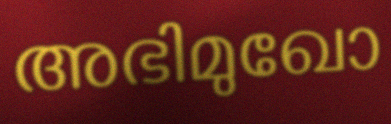
അഭിമുഖോ